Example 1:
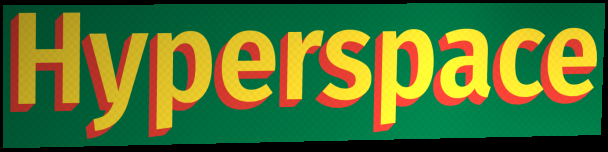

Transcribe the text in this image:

Hyperspace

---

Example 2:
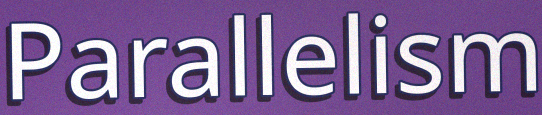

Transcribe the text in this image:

Parallelism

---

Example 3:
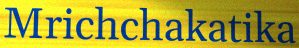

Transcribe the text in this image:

Mrichchakatika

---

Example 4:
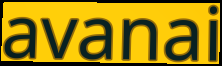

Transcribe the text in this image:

avanai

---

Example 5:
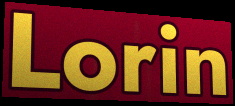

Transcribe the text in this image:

Lorin